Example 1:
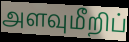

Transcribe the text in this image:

அளவுமீறிப்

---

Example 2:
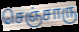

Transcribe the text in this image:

செஞ்சாரு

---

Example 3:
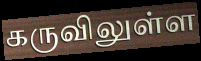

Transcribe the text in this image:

கருவிலுள்ள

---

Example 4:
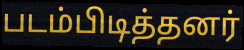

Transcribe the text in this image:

படம்பிடித்தனர்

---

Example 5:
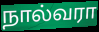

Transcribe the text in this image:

நால்வரா